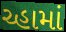
ચ્હામાં